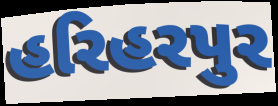
હરિહરપુર